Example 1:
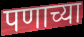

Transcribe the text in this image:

पणाच्या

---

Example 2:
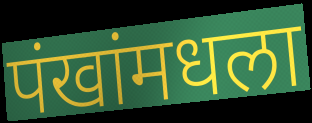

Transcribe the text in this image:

पंखांमधला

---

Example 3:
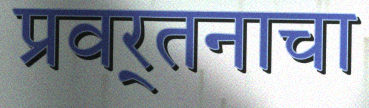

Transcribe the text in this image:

प्रवर्तनाचा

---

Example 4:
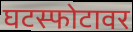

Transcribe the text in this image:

घटस्फोटावर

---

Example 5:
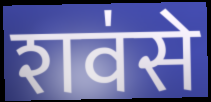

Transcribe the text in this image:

शव॑से